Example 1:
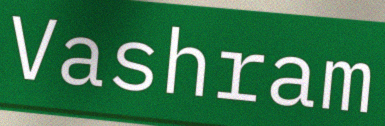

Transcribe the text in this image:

Vashram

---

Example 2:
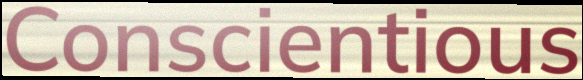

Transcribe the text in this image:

Conscientious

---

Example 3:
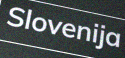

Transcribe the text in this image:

Slovenija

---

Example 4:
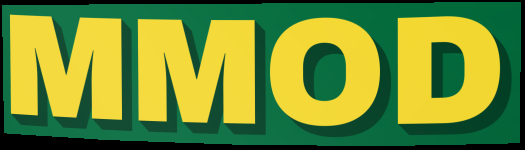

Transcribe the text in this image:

MMOD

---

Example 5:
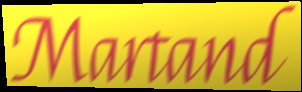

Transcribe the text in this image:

Martand